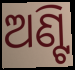
ଅଣ୍ଟି